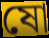
ষো